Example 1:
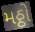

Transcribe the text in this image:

મઠ્ઠો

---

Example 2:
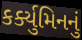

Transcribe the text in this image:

કર્ક્યુમિનનું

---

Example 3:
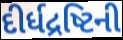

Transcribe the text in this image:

દીર્ધદ્રષ્ટિની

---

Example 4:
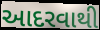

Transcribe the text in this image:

આદરવાથી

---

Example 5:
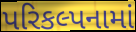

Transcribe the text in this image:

પરિકલ્પનામાં